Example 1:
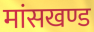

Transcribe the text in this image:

मांसखण्ड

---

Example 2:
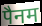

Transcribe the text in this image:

पैनम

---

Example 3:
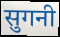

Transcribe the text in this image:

सुगनी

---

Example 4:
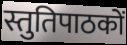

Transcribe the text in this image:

स्तुतिपाठकों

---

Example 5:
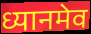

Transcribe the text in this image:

ध्यानमेव